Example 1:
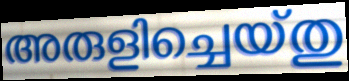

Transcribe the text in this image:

അരുളിച്ചെയ്തു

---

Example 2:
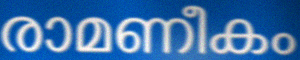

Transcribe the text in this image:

രാമണീകം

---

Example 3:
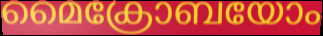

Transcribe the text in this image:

മൈക്രോബയോം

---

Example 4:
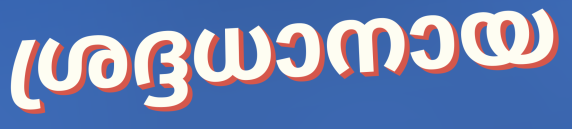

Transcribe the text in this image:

ശ്രദ്ദധാനായ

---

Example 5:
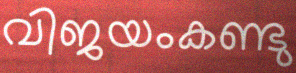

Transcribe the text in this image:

വിജയംകണ്ടു